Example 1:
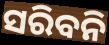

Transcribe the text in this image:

ସରିବନି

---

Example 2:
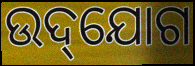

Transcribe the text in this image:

ଉଦ୍‌ଯୋଗ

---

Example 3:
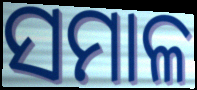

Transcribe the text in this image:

ସମାଳ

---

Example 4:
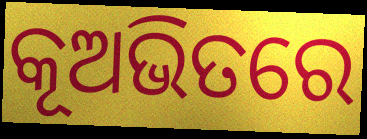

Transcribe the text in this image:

କୂଅଭିତରେ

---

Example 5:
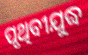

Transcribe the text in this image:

ପୃଥିବୀଯୁଦ୍ଧ